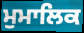
ਮੁਮਾਲਿਕ